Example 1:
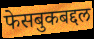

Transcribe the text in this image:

फेसबुकबद्दल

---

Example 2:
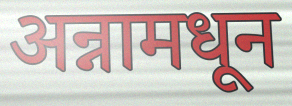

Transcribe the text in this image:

अन्नामधून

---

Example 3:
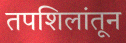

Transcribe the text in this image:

तपशिलांतून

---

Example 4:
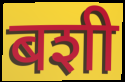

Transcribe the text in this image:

बशी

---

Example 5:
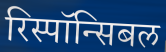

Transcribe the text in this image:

रिस्पॉन्सिबल